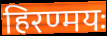
हिरण्मयः